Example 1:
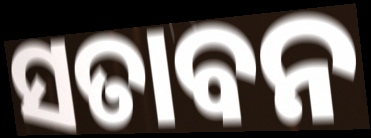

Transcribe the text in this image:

ସତାବନ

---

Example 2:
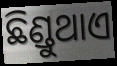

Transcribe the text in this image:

ଛିଣ୍ଡୁଥାଏ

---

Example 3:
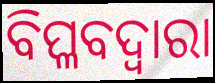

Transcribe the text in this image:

ବିପ୍ଳବଦ୍ୱାରା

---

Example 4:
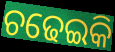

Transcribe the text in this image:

ଚଢେଇକି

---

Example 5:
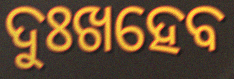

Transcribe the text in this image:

ଦୁଃଖହେବ